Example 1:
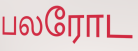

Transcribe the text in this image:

பலரோட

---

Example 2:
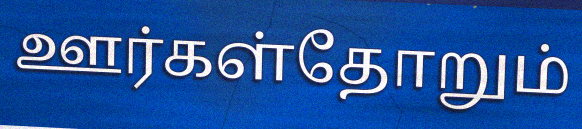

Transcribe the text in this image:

ஊர்கள்தோறும்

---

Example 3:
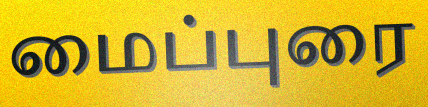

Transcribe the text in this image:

மைப்புரை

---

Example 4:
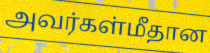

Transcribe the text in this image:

அவர்கள்மீதான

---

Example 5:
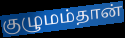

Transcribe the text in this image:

குழுமம்தான்